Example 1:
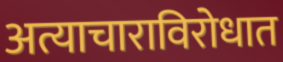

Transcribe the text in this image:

अत्याचाराविरोधात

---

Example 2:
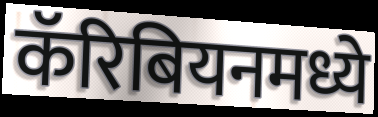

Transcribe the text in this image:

कॅरिबियनमध्ये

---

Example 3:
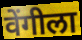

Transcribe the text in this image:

वेंगीला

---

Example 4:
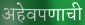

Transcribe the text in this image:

अहेवपणाची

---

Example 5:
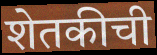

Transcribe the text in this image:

शेतकीची